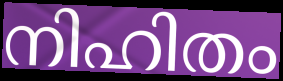
നിഹിതം